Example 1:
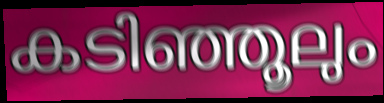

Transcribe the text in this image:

കടിഞ്ഞൂലും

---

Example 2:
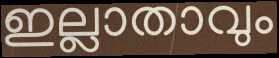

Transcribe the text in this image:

ഇല്ലാതാവും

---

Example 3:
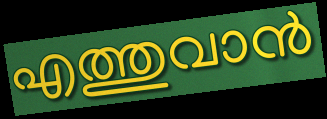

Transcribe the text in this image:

എത്തുവാൻ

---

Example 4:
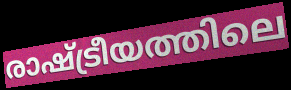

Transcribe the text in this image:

രാഷ്ട്രീയത്തിലെ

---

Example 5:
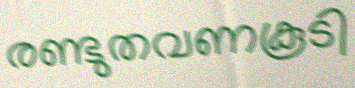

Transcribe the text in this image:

രണ്ടുതവണകൂടി